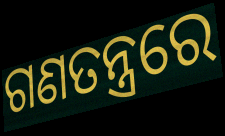
ଗଣତନ୍ତ୍ରରେ